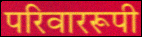
परिवाररूपी